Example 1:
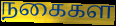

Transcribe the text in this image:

நகைகள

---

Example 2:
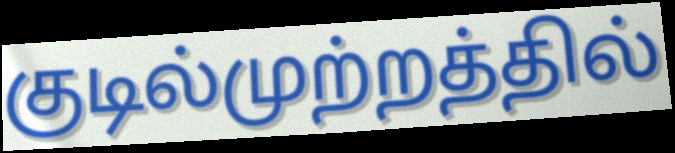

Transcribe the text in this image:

குடில்முற்றத்தில்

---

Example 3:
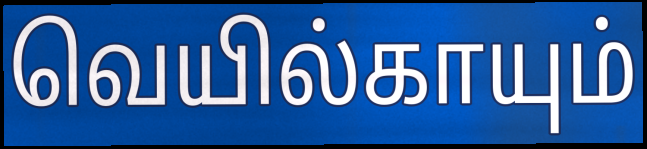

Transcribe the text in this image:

வெயில்காயும்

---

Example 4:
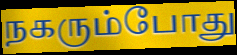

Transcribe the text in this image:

நகரும்போது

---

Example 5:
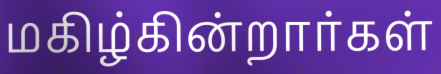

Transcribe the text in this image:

மகிழ்கின்றார்கள்